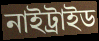
নাইট্রাইড